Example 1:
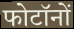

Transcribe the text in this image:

फोटॉनों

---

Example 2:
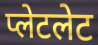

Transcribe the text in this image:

प्लेटलेट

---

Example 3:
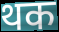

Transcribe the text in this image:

थक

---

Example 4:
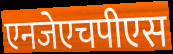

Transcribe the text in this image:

एनजेएचपीएस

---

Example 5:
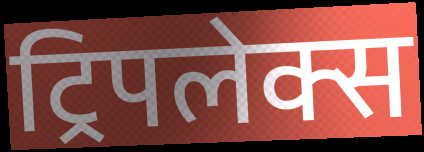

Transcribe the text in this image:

ट्रिपलेक्स